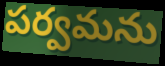
పర్వమను